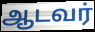
ஆடவர்